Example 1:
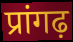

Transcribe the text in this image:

प्रांगढ़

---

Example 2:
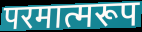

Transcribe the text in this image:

परमात्मरूप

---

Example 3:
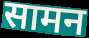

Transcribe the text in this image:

सामन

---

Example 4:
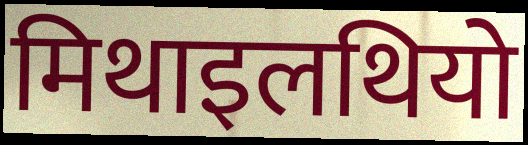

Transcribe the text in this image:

मिथाइलथियो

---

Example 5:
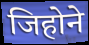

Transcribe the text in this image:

जिहोने